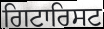
ਗਿਟਾਰਿਸਟ